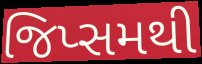
જિપ્સમથી